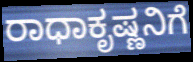
ರಾಧಾಕೃಷ್ಣನಿಗೆ